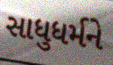
સાધુધર્મને